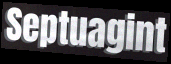
Septuagint